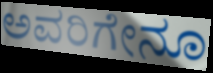
ಅವರಿಗೇನೂ